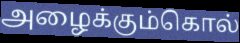
அழைக்கும்கொல்